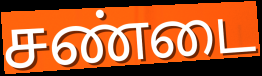
சண்டை